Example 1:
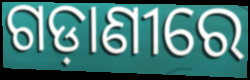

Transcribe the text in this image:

ଗଡ଼ାଣୀରେ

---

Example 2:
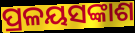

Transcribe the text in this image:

ପ୍ରଳୟସଙ୍କାଶ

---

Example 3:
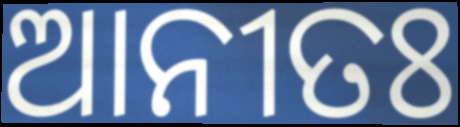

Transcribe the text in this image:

ଆନୀତଃ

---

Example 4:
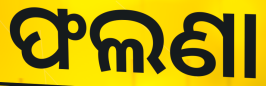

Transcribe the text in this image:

ଫଲଣା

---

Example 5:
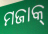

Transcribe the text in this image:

ମଜାକ୍